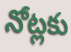
నోట్లకు